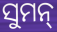
ସୁମନ୍